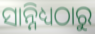
ସାନ୍ନିଧ୍ୟଠାରୁ